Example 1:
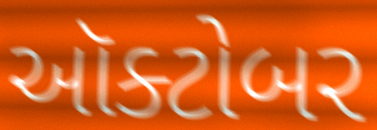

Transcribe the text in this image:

ઑક્ટોબર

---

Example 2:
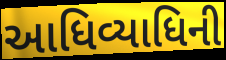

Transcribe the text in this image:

આધિવ્યાધિની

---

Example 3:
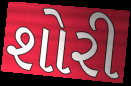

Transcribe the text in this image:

શોરી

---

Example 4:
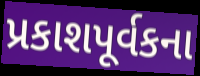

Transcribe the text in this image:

પ્રકાશપૂર્વકના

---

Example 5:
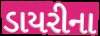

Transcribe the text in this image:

ડાયરીના